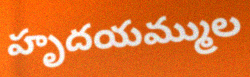
హృదయమ్ముల